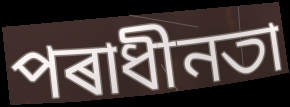
পৰাধীনতা